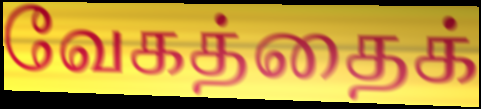
வேகத்தைக்